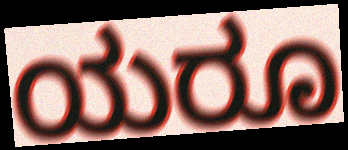
ಯರೂ